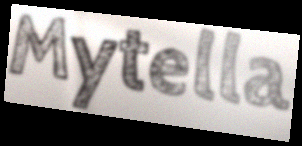
Mytella